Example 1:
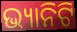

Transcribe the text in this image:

ଭ୍ୟାନିଟି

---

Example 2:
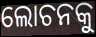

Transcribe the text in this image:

ଲୋଚନକୁ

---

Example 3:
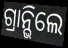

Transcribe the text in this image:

ଗ୍ରାନ୍ଭିଲେ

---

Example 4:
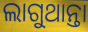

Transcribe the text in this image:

ଲାଗୁଥାନ୍ତା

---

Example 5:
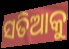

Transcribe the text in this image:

ସତିଆକୁ